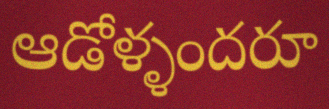
ఆడోళ్ళందరూ